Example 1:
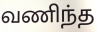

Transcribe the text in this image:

வணிந்த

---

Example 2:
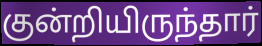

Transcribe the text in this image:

குன்றியிருந்தார்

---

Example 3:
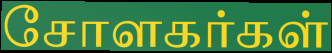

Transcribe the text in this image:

சோளகர்கள்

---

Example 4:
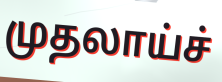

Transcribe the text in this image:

முதலாய்ச்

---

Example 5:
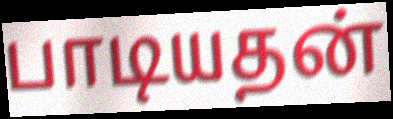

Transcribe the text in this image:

பாடியதன்